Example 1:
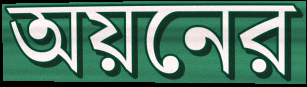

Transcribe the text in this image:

অয়নের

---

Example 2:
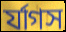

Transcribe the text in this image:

র্যাগস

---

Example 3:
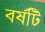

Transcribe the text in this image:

বর্ষটি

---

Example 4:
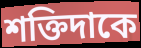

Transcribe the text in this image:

শক্তিদাকে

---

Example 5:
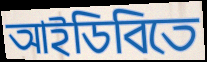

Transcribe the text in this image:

আইডিবিতে